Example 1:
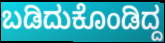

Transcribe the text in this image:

ಬಡಿದುಕೊಂಡಿದ್ದ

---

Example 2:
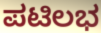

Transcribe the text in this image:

ಪಟಿಲಭ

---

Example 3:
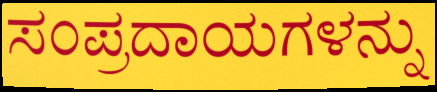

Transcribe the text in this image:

ಸಂಪ್ರದಾಯಗಳನ್ನು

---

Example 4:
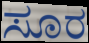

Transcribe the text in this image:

ಸೂರ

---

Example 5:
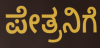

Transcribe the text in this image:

ಪೇತ್ರನಿಗೆ